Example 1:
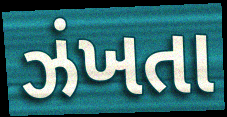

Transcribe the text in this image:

ઝંખતા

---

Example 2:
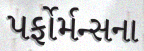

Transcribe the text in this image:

પર્ફોર્મન્સના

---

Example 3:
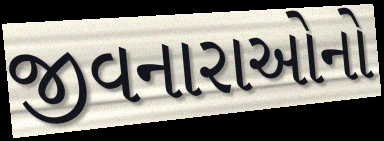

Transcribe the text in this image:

જીવનારાઓનો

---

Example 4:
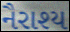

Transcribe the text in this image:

નૈરાશ્ય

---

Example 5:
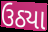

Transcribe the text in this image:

ઉઠ્યા